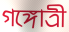
গঙ্গোত্ৰী